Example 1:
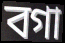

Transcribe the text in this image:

বগা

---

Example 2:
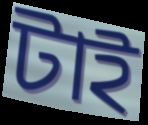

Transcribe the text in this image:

টাই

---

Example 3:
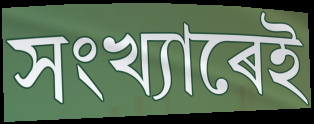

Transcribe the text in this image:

সংখ্যাৰেই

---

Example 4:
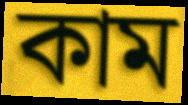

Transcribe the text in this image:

কাম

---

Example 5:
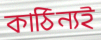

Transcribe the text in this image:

কাঠিন্যই